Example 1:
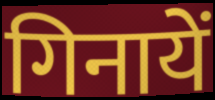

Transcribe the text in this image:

गिनायें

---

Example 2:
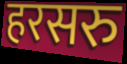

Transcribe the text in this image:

हरसरु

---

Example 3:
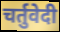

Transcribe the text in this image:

चर्तुवेदी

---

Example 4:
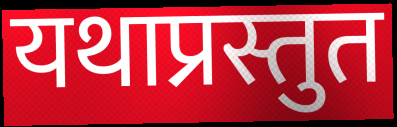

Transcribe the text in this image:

यथाप्रस्तुत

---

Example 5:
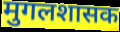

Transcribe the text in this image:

मुगलशासक